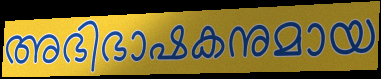
അഭിഭാഷകനുമായ